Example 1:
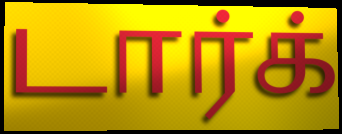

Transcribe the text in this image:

டார்க்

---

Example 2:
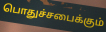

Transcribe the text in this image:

பொதுச்சபைக்கும்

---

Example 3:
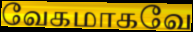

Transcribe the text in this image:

வேகமாகவே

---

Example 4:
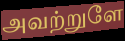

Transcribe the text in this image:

அவற்றுளே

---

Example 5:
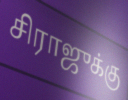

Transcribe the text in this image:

சிராஜுக்கு